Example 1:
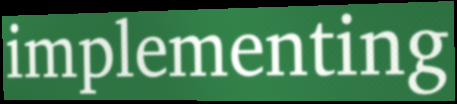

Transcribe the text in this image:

implementing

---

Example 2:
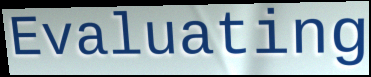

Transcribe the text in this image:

Evaluating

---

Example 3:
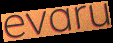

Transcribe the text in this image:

evaru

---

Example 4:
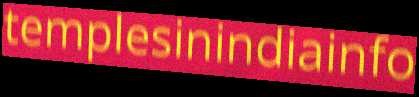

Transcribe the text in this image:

templesinindiainfo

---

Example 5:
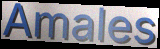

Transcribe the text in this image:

Amales